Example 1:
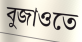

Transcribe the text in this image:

বুজাওতে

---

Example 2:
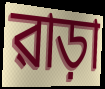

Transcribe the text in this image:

ৱাড়া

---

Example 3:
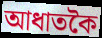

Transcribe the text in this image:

আধাতকৈ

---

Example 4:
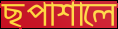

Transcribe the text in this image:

ছপাশালে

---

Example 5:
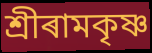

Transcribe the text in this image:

শ্ৰীৰামকৃষ্ণ